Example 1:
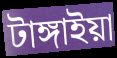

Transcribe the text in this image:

টাঙ্গাইয়া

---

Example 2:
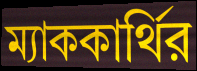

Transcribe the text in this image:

ম্যাককার্থির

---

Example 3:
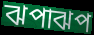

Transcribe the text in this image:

ঝপাঝপ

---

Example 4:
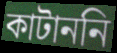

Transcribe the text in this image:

কাটাননি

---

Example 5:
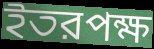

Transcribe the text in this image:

ইতরপক্ষ